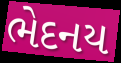
ભેદનય